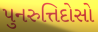
પુનરુત્તિદોસો